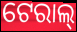
ଟେରାଲ୍